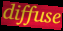
diffuse